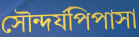
সৌন্দর্যপিপাসা